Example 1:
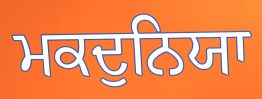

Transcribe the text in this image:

ਮਕਦੁਨਿਯਾ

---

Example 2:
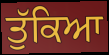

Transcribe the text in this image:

ਤੁੱਕਿਆ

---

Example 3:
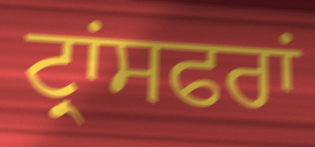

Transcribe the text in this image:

ਟ੍ਰਾਂਸਫਰਾਂ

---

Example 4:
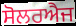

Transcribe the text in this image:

ਸੋਲਰਐਜ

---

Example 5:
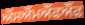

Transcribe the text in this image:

ਐੱਸਐੱਮਐੱਫਐੱਫ